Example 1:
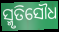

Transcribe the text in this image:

ସ୍ମୃତିସୌଧ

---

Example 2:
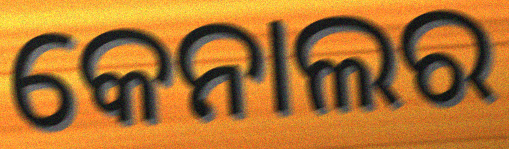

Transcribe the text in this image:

କେନାଲର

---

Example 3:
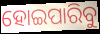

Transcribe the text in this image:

ହୋଇପାରିବୁ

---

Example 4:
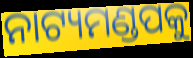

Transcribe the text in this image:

ନାଟ୍ୟମଣ୍ଡପକୁ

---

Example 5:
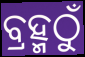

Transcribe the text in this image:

ବ୍ରହ୍ମଠୁଁ